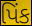
પિંક